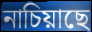
নাচিয়াছে